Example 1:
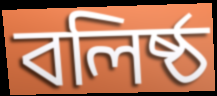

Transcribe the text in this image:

বলিষ্ঠ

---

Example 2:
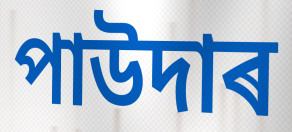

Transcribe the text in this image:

পাউদাৰ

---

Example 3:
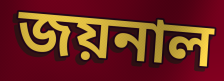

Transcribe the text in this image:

জয়নাল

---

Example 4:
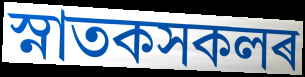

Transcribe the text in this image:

স্নাতকসকলৰ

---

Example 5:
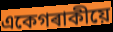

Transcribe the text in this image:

একেগৰাকীয়ে